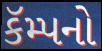
કૅમ્પનો